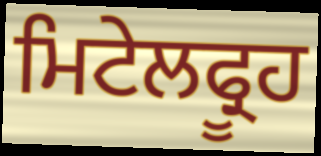
ਮਿਟੇਲਫ੍ਰੂਹ